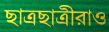
ছাত্রছাত্রীরাও